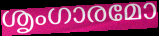
ശൃംഗാരമോ